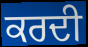
ਕਰਦੀ